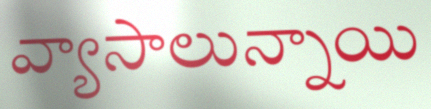
వ్యాసాలున్నాయి